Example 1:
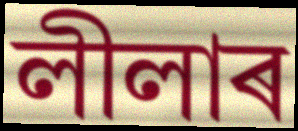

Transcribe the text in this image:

লীলাৰ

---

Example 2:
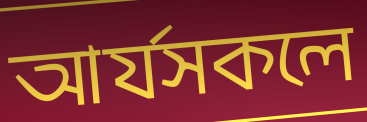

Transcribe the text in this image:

আৰ্যসকলে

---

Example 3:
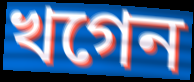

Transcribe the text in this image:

খগেন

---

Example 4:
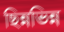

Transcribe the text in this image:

ছিন্নভিন্ন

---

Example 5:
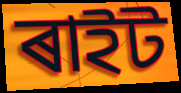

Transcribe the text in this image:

ৰাইট